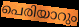
പെരിയാറും